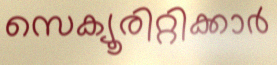
സെക്യൂരിറ്റിക്കാർ